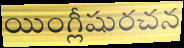
యింగ్లీషురచన